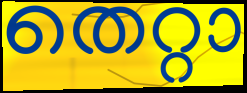
തെറ്റാ